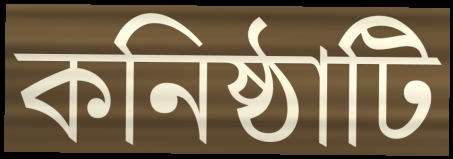
কনিষ্ঠাটি